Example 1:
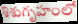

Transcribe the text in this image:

శిశుగృహంలో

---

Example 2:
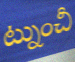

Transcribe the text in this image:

ట్నుంచీ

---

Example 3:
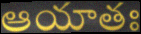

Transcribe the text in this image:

ఆయాతః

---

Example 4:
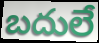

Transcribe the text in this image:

బదులే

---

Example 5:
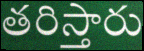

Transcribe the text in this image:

తరిస్తారు